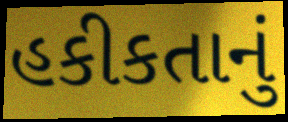
હકીકતાનું